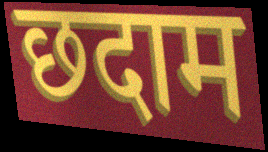
छदाम